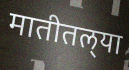
मातीतल्या